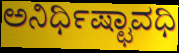
ಅನಿರ್ಧಿಷ್ಟಾವಧಿ